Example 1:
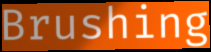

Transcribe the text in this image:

Brushing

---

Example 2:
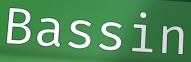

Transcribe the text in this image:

Bassin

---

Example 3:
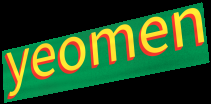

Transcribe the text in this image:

yeomen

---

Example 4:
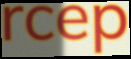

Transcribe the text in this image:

rcep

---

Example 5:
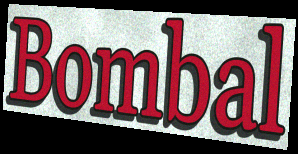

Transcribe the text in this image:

Bombal